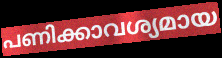
പണിക്കാവശ്യമായ